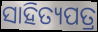
ସାହିତ୍ୟପତ୍ର